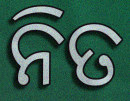
ନିତ